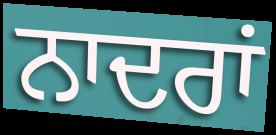
ਨਾਦਰਾਂ